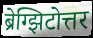
ब्रेग्झिटोत्तर